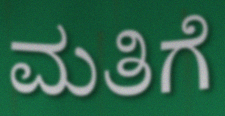
ಮತಿಗೆ